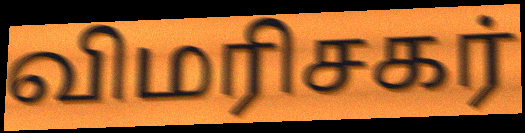
விமரிசகர்